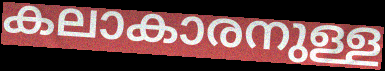
കലാകാരനുള്ള